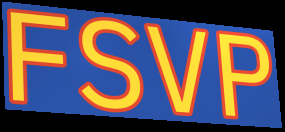
FSVP